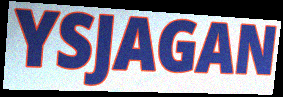
YSJAGAN